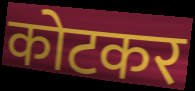
कोटकर